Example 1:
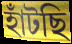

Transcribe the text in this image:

হাঁটছি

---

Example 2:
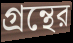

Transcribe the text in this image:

গ্রন্থের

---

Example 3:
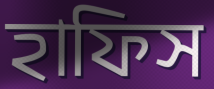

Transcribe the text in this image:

হাফিস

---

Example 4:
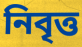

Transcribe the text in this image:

নিবৃত্ত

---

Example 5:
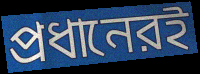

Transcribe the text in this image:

প্রধানেরই